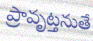
ప్రావృట్తనుతే